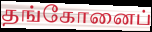
தங்கோனைப்